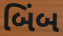
બિંબ